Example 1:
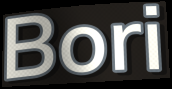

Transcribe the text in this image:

Bori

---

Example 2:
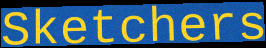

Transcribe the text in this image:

Sketchers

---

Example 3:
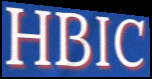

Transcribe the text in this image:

HBIC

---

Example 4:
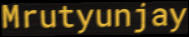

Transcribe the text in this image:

Mrutyunjay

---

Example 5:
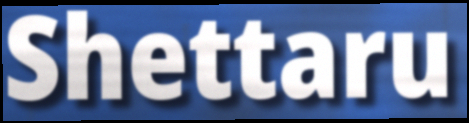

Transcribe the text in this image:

Shettaru